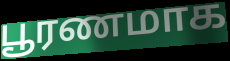
பூரணமாக